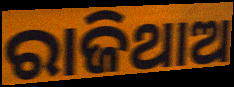
ରାଜିଥାଅ